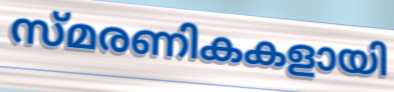
സ്മരണികകളായി